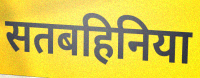
सतबहिनिया